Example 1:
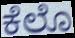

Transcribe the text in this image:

ಕೆಲೊ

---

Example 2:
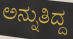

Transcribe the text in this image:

ಅನ್ನುತಿದ್ದ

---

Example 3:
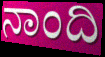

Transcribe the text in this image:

ನಾಂದಿ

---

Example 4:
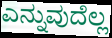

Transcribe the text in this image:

ಎನ್ನುವುದೆಲ್ಲ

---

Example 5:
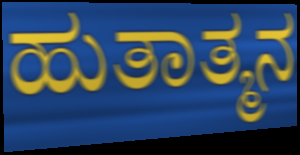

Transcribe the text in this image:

ಹುತಾತ್ಮನ